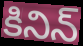
కినిన్